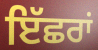
ਇੱਛਰਾਂ